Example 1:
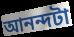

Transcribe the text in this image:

আনন্দটা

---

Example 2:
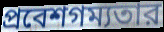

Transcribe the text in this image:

প্রবেশগম্যতার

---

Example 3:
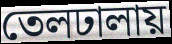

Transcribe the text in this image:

তেলঢালায়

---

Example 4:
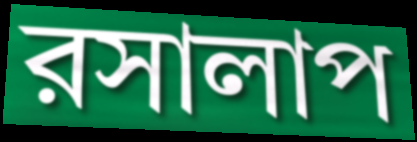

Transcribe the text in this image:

রসালাপ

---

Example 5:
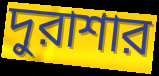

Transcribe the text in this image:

দুরাশার